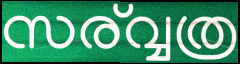
സര്വ്വത്ര